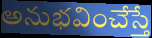
అనుభవించేస్తే